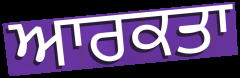
ਆਰਕਤਾ